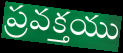
ప్రవక్తయు